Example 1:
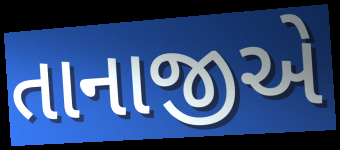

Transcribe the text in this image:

તાનાજીએ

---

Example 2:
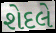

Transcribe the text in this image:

શેદલે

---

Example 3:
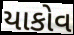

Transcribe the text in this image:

યાકોવ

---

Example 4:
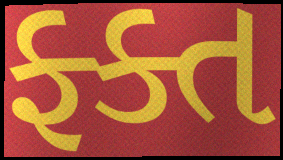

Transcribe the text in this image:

ફ્ક્ત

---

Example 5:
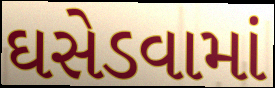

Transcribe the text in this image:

ઘસેડવામાં